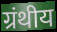
ग्रंथीय